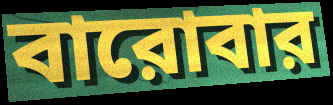
বারোবার